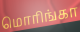
மொரிங்கா